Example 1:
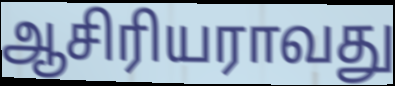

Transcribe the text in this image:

ஆசிரியராவது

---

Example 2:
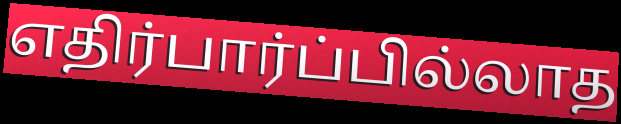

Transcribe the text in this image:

எதிர்பார்ப்பில்லாத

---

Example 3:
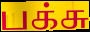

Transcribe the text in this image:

பக்சு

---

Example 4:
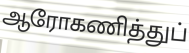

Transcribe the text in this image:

ஆரோகணித்துப்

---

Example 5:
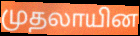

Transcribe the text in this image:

முதலாயின